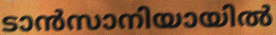
ടാൻസാനിയായിൽ